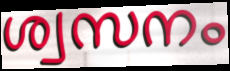
ശ്വസനം